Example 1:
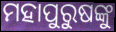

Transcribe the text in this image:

ମହାପୁରୁଷଙ୍କୁ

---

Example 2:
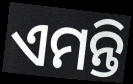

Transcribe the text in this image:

ଏମନ୍ତି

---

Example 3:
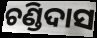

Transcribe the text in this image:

ଚଣ୍ଡିଦାସ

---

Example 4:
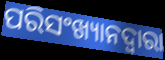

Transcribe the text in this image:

ପରିସଂଖ୍ୟାନଦ୍ଵାରା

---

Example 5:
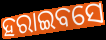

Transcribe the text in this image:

ହରାଇବସେ